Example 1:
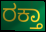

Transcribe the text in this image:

ರಕ್ತಾ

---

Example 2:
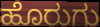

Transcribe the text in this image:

ಹೊರುಗು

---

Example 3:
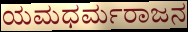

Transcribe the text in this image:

ಯಮಧರ್ಮರಾಜನ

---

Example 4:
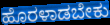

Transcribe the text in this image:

ಹೊರಳಾಡಬೇಕು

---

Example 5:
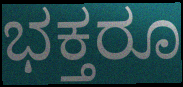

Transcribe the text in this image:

ಭಕ್ತರೂ